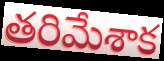
తరిమేశాక